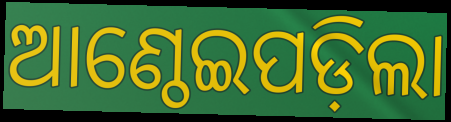
ଆଣ୍ଠେଇପଡ଼ିଲା